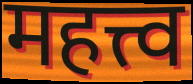
महत्त्व